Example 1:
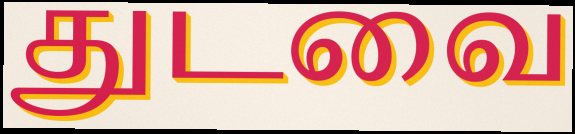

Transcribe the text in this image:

துடவை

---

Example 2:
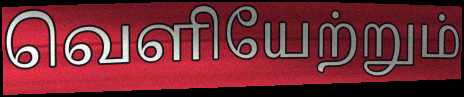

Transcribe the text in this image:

வெளியேற்றும்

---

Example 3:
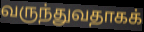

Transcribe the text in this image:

வருந்துவதாகக்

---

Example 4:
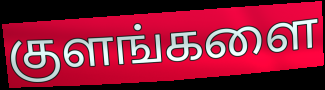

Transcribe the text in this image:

குளங்களை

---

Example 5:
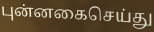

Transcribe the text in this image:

புன்னகைசெய்து